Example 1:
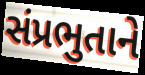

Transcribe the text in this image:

સંપ્રભુતાને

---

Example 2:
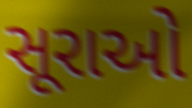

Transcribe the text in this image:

સૂરાઓ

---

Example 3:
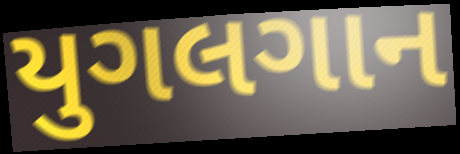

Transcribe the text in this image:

યુગલગાન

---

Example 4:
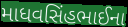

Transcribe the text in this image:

માધવસિંહભાઈના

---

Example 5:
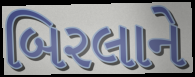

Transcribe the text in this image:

બિરલાને